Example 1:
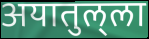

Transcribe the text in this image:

अयातुल्ला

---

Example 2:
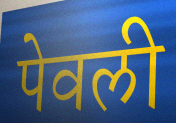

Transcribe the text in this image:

पेवली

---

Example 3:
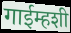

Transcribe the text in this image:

गाईम्हशी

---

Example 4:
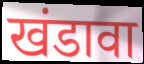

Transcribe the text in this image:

खंडावा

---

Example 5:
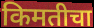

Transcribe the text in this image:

किमतीचा